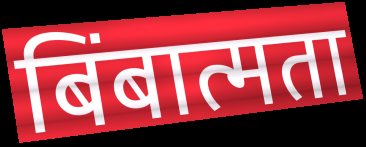
बिंबात्मता